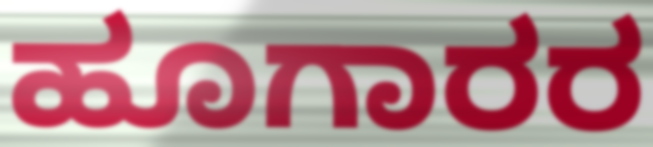
ಹೂಗಾರರ